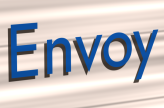
Envoy